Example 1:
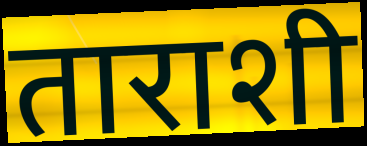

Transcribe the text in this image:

ताराशी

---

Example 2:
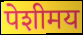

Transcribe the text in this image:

पेशीमय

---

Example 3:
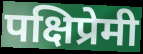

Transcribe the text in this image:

पक्षिप्रेमी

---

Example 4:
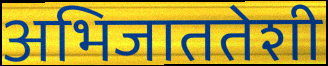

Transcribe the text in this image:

अभिजाततेशी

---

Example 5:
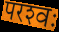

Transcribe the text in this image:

परश्वः